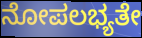
ನೋಪಲಭ್ಯತೇ